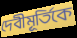
দেবীমূর্তিকে